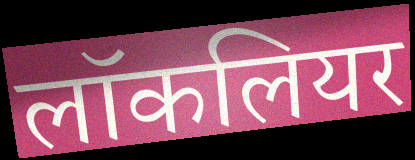
लॉकलियर